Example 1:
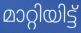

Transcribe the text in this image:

മാറ്റിയിട്ട്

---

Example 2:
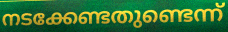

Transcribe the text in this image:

നടക്കേണ്ടതുണ്ടെന്ന്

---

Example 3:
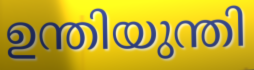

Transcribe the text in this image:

ഉന്തിയുന്തി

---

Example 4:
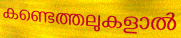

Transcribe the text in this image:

കണ്ടെത്തലുകളാൽ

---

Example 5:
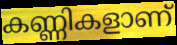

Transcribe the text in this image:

കണ്ണികളാണ്